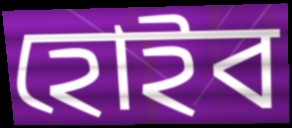
হোইব